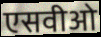
एसवीओ